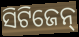
ସିଟିଜେନ୍